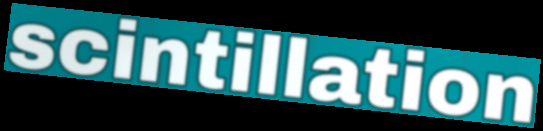
scintillation